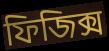
ফিজিক্স